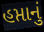
હપ્તાનું